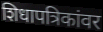
शिधापत्रिकांवर